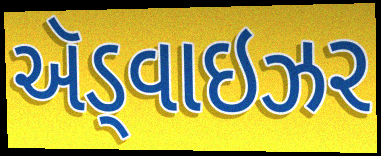
ઍડ્વાઇઝર